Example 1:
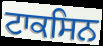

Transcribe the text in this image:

ਟਾਕਸਿਨ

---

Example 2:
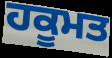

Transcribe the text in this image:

ਹਕੂਮਤ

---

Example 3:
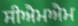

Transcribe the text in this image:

ਸੀਐਮਐਮ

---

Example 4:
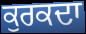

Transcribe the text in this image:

ਕੁਰਕਦਾ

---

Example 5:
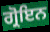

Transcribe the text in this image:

ਗ੍ਰੋਇਨ